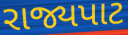
રાજ્યપાટ